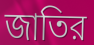
জাতির